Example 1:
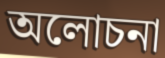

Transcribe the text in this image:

অলোচনা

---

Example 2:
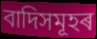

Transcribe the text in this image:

বাদিসমূহৰ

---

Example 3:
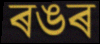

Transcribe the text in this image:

ৰঙৰ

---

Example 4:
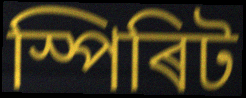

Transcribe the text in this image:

স্পিৰিট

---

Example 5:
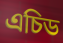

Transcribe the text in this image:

এচিড